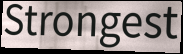
Strongest